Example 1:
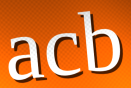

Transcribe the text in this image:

acb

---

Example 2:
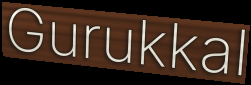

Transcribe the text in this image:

Gurukkal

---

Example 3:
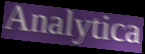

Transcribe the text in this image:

Analytica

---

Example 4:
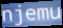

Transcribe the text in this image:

njemu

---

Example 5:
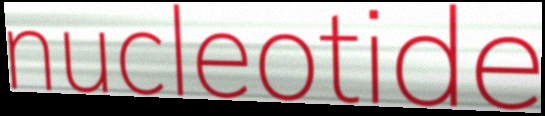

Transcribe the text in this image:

nucleotide